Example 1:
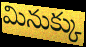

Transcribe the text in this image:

మినుక్కు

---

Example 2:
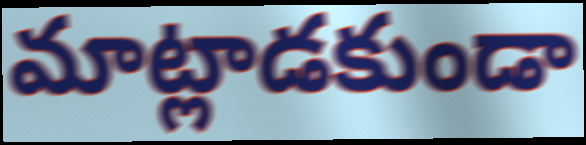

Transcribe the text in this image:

మాట్లాడకుండా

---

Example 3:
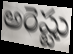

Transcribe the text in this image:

అరెష్టు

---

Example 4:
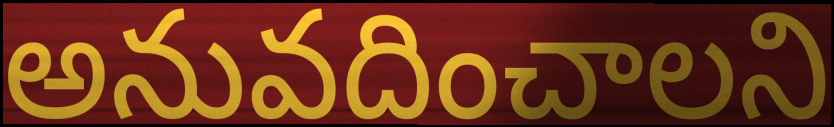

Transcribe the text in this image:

అనువదించాలని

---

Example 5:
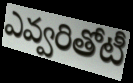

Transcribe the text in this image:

ఎవ్వరితోటీ